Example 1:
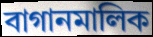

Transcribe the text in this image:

বাগানমালিক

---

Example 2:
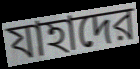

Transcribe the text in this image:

যাহাদের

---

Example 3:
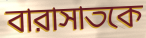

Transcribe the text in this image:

বারাসাতকে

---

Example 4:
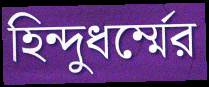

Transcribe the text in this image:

হিন্দুধর্ম্মের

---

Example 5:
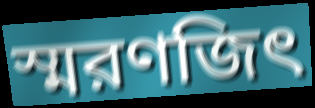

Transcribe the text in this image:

স্মরণজিৎ